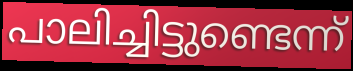
പാലിച്ചിട്ടുണ്ടെന്ന്